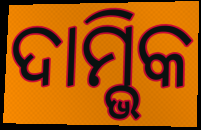
ଦାମ୍ଭିକ